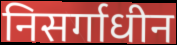
निसर्गाधीन